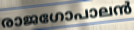
രാജഗോപാലൻ